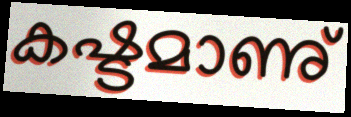
കഷ്ടമാണു്